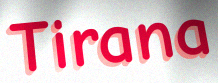
Tirana